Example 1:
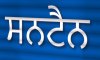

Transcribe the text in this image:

ਸਨਟੈਨ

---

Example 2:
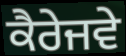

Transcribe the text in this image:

ਕੈਰੇਜਵੇ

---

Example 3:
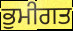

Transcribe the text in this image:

ਭੁਮੀਗਤ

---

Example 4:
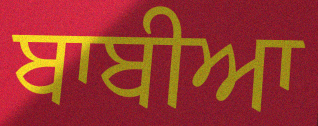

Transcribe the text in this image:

ਬਾਬੀਆ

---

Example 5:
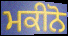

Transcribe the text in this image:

ਮਕੀਨੋ